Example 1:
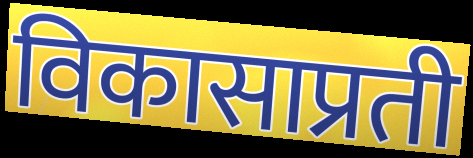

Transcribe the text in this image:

विकासाप्रती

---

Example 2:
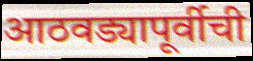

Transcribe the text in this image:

आठवड्यापूर्वीची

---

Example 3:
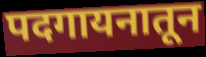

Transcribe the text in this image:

पदगायनातून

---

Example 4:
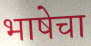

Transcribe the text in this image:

भाषेचा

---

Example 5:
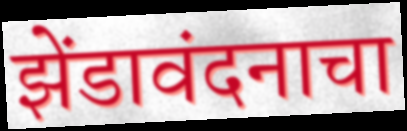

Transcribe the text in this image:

झेंडावंदनाचा